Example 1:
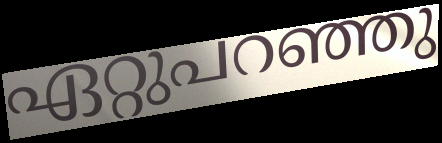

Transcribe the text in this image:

ഏറ്റുപറഞ്ഞു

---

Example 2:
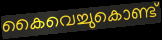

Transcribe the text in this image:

കൈവെച്ചുകൊണ്ട്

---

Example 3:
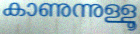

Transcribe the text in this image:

കാണുന്നുള്ളൂ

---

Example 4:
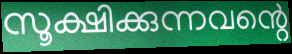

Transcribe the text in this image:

സൂക്ഷിക്കുന്നവന്റെ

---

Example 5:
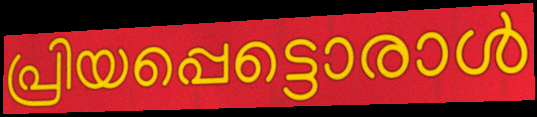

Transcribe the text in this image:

പ്രിയപ്പെട്ടൊരാൾ